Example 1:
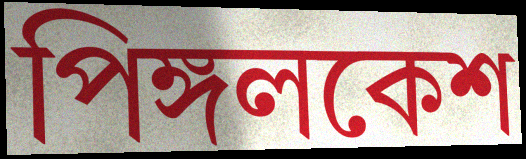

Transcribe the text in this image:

পিঙ্গলকেশ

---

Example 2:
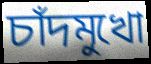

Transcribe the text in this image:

চাঁদমুখো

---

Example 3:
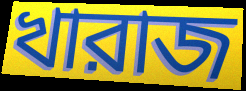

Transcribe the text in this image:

খারাজ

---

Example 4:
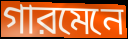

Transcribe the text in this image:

গারমেনে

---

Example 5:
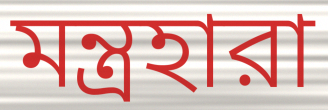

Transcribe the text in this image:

মন্ত্রহারা